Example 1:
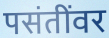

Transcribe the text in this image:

पसंतींवर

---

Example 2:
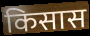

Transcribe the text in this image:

किसास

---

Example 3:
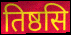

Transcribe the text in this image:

तिष्ठसि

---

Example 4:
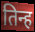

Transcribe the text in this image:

तिन्ह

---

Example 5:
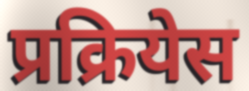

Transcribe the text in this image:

प्रक्रियेस